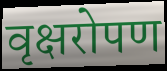
वृक्षरोपण